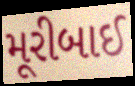
મૂરીબાઈ